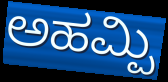
ಅಹಮ್ಪಿ